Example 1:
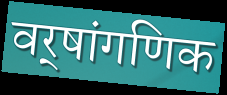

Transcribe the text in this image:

वर्षांगणिक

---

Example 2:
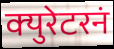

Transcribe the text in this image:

क्युरेटरनं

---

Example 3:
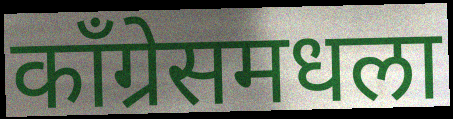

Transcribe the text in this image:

काँग्रेसमधला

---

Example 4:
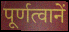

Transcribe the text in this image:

पूर्णत्वानें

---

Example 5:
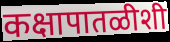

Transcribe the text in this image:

कक्षापातळीशी